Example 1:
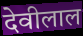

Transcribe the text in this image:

देवीलाल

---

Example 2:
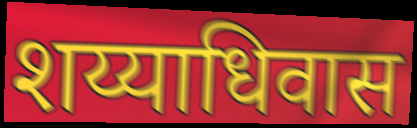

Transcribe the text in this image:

शय्याधिवास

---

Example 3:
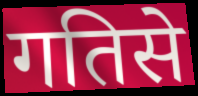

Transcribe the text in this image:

गतिसे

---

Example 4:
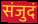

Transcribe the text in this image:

संजुदं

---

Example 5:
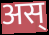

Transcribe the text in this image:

अस्